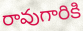
రావుగారికి